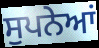
ਸੁਪਨੇਆਂ